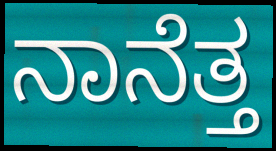
ನಾನೆತ್ತ